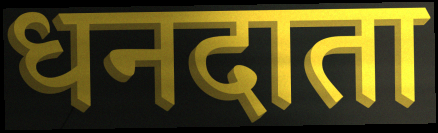
धनदाता